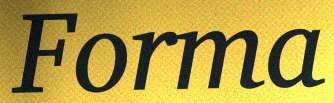
Forma